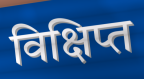
विक्षिप्त